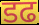
डढ